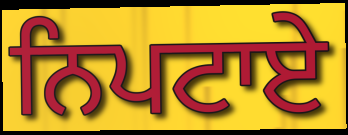
ਨਿਪਟਾਏ